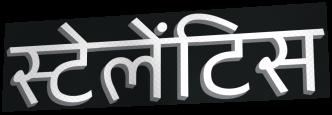
स्टेलेंटिस